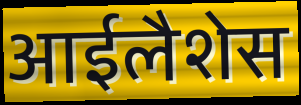
आईलैशेस